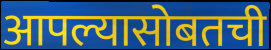
आपल्यासोबतची